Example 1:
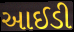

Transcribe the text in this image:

આઈડી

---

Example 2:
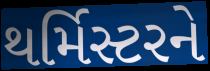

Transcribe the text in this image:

થર્મિસ્ટરને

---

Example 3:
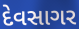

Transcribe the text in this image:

દેવસાગર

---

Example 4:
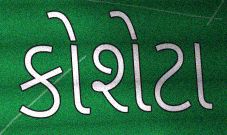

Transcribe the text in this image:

કોશેટા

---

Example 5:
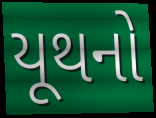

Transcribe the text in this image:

યૂથનો